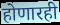
होणारही